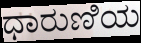
ಧಾರುಣಿಯ